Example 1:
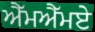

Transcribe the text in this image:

ਐੱਮਐੱਮਏ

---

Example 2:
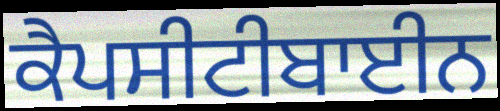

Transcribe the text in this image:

ਕੈਪਸੀਟੀਬਾਈਨ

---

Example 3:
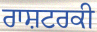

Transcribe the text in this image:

ਰਾਸ਼ਟਰਕੀ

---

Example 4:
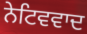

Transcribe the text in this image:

ਨੇਟਿਵਵਾਦ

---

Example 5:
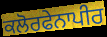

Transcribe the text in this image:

ਕਲੋਰਫੇਨਾਪੀਰ